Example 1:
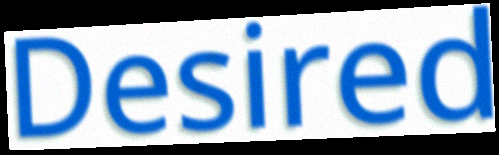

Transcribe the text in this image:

Desired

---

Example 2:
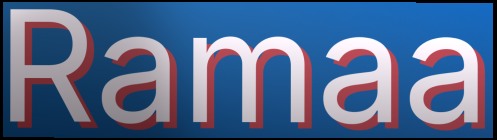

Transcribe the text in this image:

Ramaa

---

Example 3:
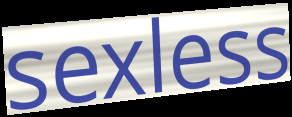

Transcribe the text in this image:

sexless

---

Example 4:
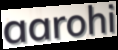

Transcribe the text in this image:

aarohi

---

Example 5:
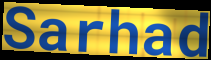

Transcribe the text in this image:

Sarhad